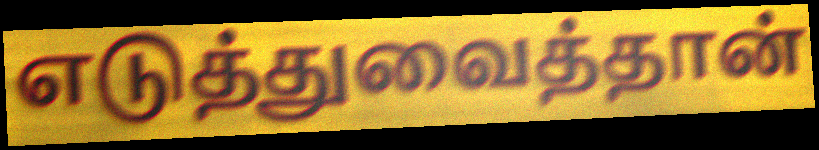
எடுத்துவைத்தான்